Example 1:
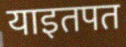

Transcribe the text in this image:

याइतपत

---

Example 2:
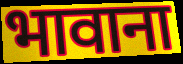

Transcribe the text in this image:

भावाना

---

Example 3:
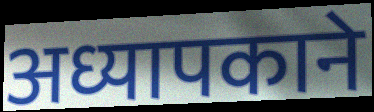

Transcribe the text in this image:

अध्यापकाने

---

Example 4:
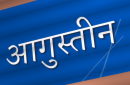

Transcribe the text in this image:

आगुस्तीन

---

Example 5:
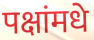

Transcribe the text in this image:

पक्षांमधे